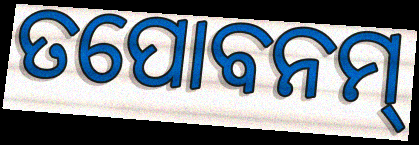
ତପୋବନମ୍